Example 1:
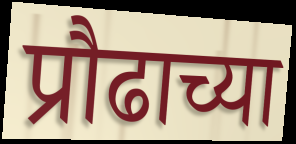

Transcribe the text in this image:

प्रौढाच्या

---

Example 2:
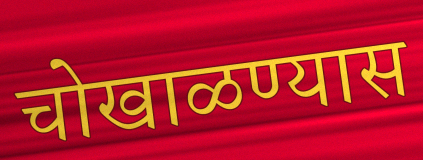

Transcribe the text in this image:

चोखाळण्यास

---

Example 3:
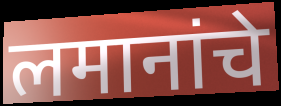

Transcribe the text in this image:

लमानांचे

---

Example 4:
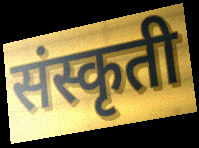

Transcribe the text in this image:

संस्कृती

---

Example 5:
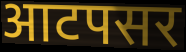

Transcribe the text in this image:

आटपसर